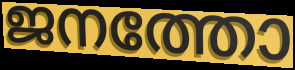
ജനത്തോ